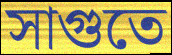
সাগুতে